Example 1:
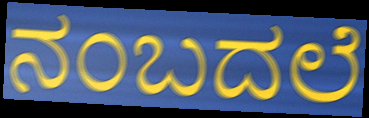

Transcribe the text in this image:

ನಂಬದಲೆ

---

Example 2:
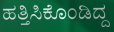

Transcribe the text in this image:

ಹತ್ತಿಸಿಕೊಂಡಿದ್ದ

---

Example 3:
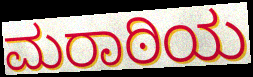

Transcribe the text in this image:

ಮರಾಠಿಯ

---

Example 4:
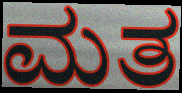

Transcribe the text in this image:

ಮತ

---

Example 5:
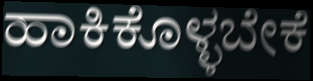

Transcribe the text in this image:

ಹಾಕಿಕೊಳ್ಳಬೇಕೆ